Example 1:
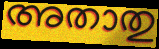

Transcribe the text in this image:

അതാതു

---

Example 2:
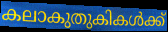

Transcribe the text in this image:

കലാകുതുകികൾക്ക്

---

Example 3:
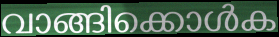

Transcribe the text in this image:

വാങ്ങിക്കൊൾക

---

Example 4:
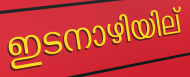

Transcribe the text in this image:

ഇടനാഴിയില്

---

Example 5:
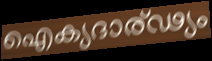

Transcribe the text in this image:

ഐക്യദാര്ഢ്യം